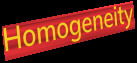
Homogeneity